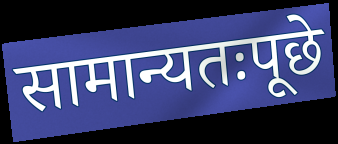
सामान्यतःपूछे